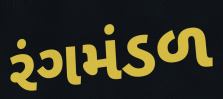
રંગમંડળ